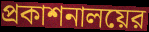
প্রকাশনালয়ের